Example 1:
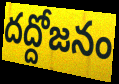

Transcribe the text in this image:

దద్దోజనం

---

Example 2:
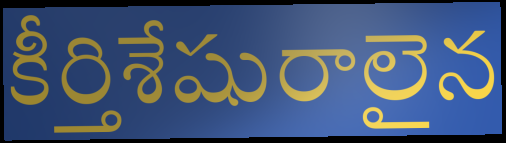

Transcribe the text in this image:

కీర్తిశేషురాలైన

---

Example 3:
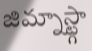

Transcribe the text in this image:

జిమ్నాస్ట్గా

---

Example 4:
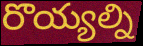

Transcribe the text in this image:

రొయ్యల్ని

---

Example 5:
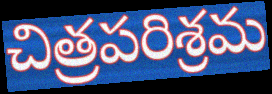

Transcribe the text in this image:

చిత్రపరిశ్రమ